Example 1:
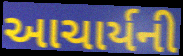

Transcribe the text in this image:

આચાર્યની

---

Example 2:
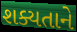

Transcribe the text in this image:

શક્યતાને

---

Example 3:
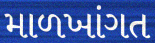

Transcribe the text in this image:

માળખાંગત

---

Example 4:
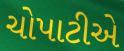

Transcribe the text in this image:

ચોપાટીએ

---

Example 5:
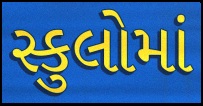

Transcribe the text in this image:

સ્કુલોમાં